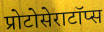
प्रोटोसेराटॉप्स